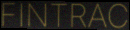
FINTRAC